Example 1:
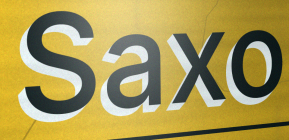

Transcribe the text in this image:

Saxo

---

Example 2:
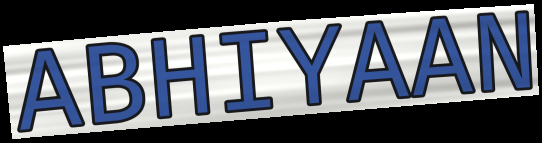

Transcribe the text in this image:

ABHIYAAN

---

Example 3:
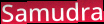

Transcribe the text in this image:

Samudra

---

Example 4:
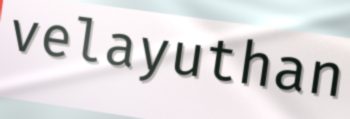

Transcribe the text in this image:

velayuthan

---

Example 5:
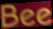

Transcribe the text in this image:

Bee